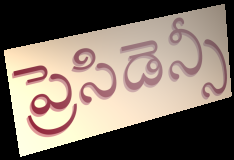
ప్రెసిడెన్సీ